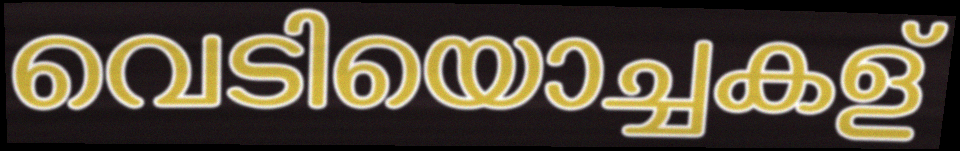
വെടിയൊച്ചകള്